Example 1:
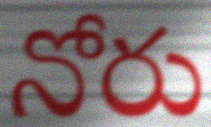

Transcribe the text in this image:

నోరు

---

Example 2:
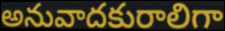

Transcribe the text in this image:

అనువాదకురాలిగా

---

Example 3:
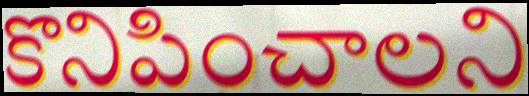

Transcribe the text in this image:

కొనిపించాలని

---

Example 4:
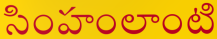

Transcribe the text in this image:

సింహంలాంటి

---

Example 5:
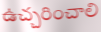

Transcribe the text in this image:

ఉచ్చరించాలి